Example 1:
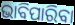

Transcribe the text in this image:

ଭାବିପାରିବା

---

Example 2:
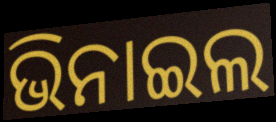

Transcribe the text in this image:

ଭିନାଇଲ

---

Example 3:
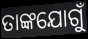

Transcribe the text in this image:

ତାଙ୍କଯୋଗୁଁ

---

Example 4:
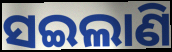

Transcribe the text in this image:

ସଇଲାଣି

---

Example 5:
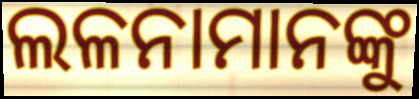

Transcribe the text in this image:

ଲଳନାମାନଙ୍କୁ